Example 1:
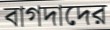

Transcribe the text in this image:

বাগদাদের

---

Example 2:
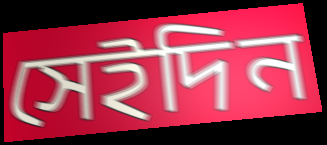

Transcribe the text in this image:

সেইদিন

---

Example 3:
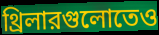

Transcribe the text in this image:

থ্রিলারগুলোতেও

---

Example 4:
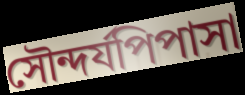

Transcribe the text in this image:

সৌন্দর্যপিপাসা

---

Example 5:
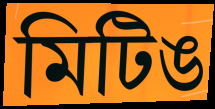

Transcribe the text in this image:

মিটিঙ